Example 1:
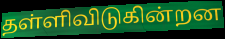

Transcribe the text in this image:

தள்ளிவிடுகின்றன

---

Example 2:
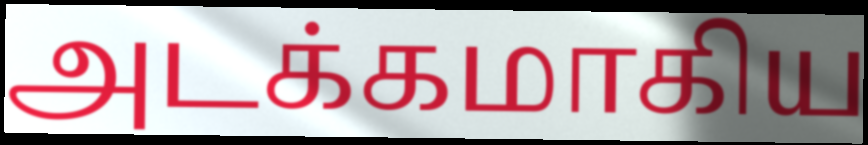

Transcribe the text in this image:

அடக்கமாகிய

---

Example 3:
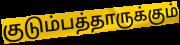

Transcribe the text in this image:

குடும்பத்தாருக்கும்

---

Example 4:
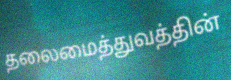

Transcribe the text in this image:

தலைமைத்துவத்தின்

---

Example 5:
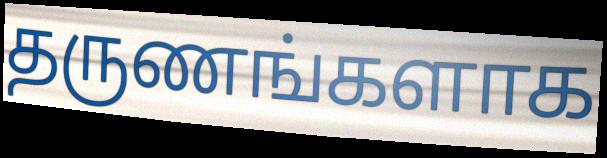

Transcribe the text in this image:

தருணங்களாக